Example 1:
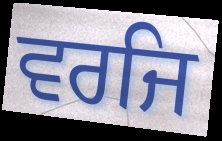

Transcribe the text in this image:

ਵਰਜਿ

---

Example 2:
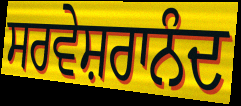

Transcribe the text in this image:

ਸਰਵੇਸ਼ਰਾਨੰਦ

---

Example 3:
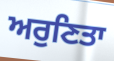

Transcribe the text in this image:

ਅਰੁਣਿਤਾ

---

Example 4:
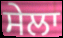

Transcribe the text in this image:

ਸੇਲਾ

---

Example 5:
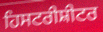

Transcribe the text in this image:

ਹਿਸਟਰੀਸ਼ੀਟਰ